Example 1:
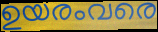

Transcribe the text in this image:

ഉയരംവരെ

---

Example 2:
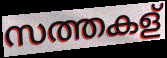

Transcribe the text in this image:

സത്തകള്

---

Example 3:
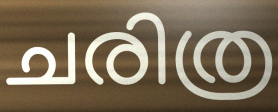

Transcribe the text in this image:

ചരിത്ര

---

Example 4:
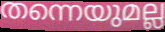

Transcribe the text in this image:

തന്നെയുമല്ല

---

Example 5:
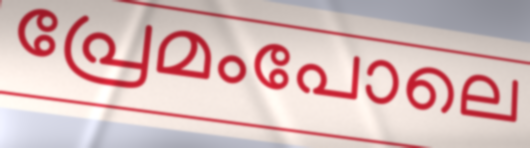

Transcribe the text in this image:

പ്രേമംപോലെ